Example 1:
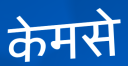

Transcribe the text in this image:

केमसे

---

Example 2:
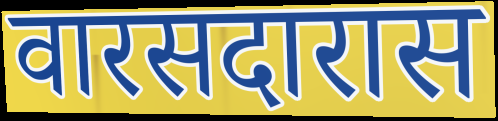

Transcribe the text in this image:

वारसदारास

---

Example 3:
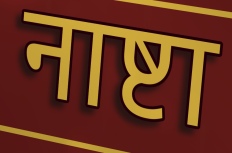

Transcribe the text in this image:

नाष्टा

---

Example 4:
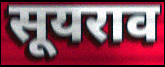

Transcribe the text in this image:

सूयराव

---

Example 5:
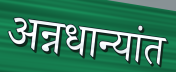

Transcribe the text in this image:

अन्नधान्यांत